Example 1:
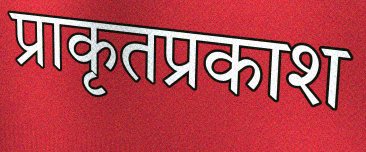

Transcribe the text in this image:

प्राकृतप्रकाश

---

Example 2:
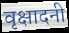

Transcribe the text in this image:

वृक्षादनी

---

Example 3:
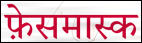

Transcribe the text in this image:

फ़ेसमास्क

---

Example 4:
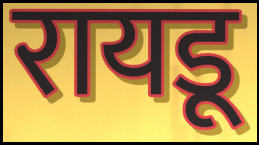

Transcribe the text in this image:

रायडू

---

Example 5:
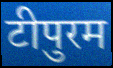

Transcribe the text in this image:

टीपुरम